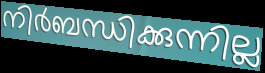
നിർബന്ധിക്കുന്നില്ല